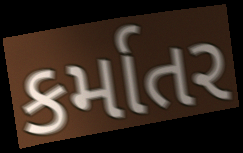
કર્માતર